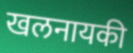
खलनायकी